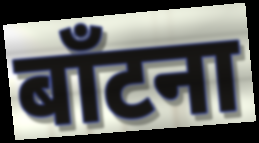
बाँटना